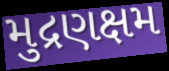
મુદ્રણક્ષમ